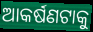
ଆକର୍ଷଣଟାକୁ